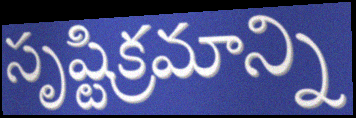
సృష్టిక్రమాన్ని